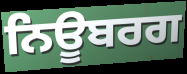
ਨਿਊਬਰਗ